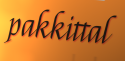
pakkittal